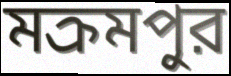
মক্রমপুর